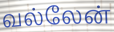
வல்லேன்